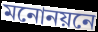
মনোনয়নে